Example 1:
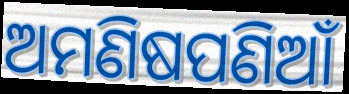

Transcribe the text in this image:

ଅମଣିଷପଣିଆଁ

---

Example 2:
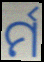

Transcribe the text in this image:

ର୍ମ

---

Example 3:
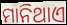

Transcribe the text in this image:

ମାନିଥାଏ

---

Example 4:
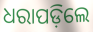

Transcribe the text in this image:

ଧରାପଡ଼ିଲେ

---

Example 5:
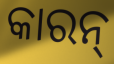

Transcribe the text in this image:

କାରନ୍